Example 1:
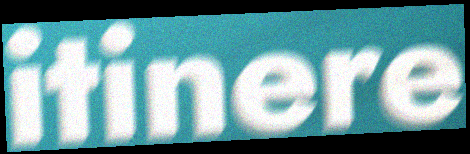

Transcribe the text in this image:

itinere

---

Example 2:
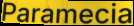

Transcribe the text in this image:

Paramecia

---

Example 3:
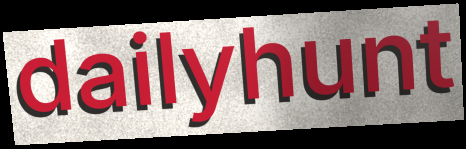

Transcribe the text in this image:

dailyhunt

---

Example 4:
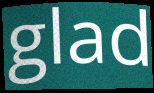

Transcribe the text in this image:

glad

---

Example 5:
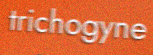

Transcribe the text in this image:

trichogyne